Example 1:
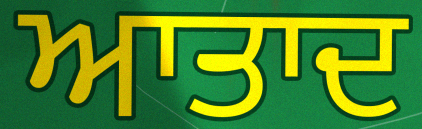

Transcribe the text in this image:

ਆਤਾਦ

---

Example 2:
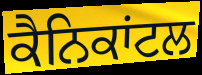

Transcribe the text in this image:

ਕੈਨਿਕਾਂਟਲ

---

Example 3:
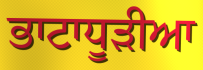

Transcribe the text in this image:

ਭਾਟਾਧੂੜੀਆ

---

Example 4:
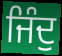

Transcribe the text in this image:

ਜਿੰਦੁ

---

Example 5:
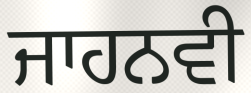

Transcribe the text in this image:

ਜਾਹਨਵੀ